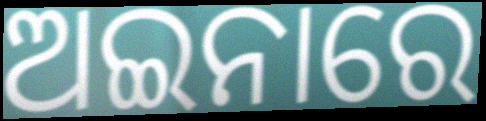
ଅଇନାରେ